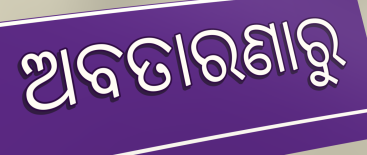
ଅବତାରଣାରୁ